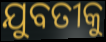
ଯୁବତୀକୁ